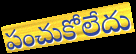
పంచుకోలేదు